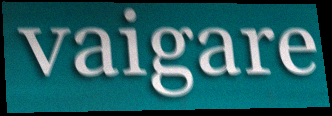
vaigare